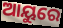
ଆୟୁରେ